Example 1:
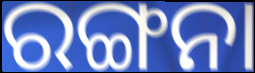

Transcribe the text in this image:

ରଙ୍ଗନା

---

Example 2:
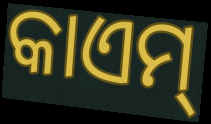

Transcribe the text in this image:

କାଏମ୍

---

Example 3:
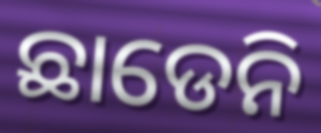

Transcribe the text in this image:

ଛାଡେନି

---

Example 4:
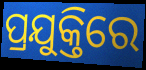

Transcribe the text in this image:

ପ୍ରଯୁକ୍ତିରେ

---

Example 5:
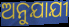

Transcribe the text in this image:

ଅନୁଯାଯୀ